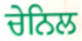
ਚੇਨਿਲ